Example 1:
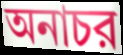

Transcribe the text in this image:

অনাচর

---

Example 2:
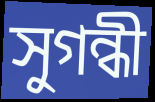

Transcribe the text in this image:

সুগন্ধী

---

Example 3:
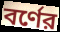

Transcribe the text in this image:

বর্ণের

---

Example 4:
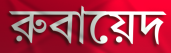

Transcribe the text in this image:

রুবায়েদ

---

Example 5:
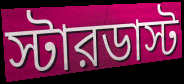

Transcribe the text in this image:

স্টারডাস্ট